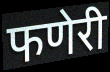
फणेरी